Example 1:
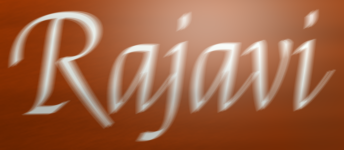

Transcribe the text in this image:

Rajavi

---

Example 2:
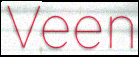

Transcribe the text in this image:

Veen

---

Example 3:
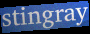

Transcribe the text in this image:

stingray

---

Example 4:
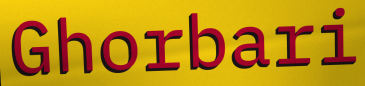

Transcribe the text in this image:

Ghorbari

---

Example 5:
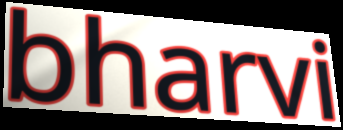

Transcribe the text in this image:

bharvi